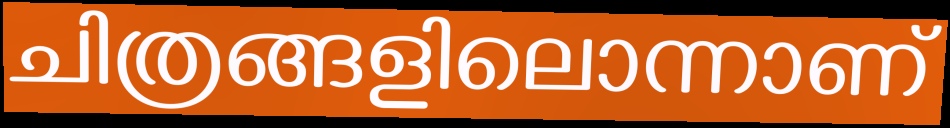
ചിത്രങ്ങളിലൊന്നാണ്